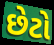
છેટો